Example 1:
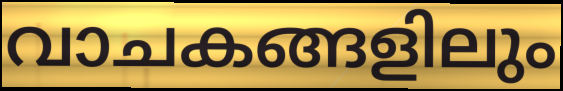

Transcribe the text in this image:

വാചകങ്ങളിലും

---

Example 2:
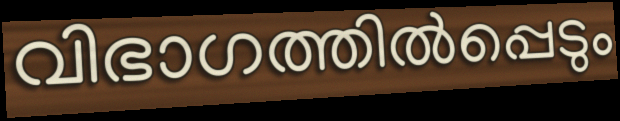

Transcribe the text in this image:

വിഭാഗത്തിൽപ്പെടും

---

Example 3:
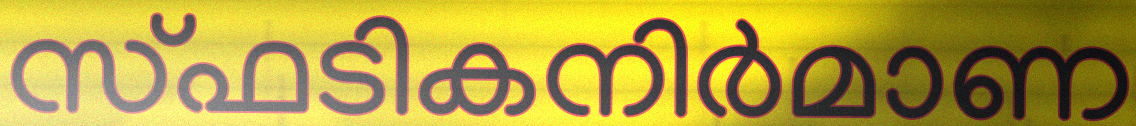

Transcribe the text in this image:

സ്ഫടികനിർമാണ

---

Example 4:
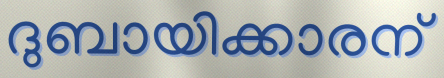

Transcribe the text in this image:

ദുബായിക്കാരന്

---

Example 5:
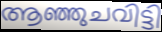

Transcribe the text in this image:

ആഞ്ഞുചവിട്ടി